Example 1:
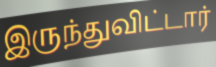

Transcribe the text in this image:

இருந்துவிட்டார்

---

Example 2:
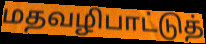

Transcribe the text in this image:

மதவழிபாட்டுத்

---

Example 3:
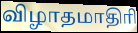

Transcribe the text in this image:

விழாதமாதிரி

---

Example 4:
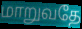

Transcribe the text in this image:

மாறுவதே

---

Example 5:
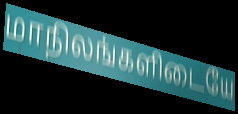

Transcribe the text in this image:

மாநிலங்களிடையே